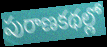
పురాణకథల్లో